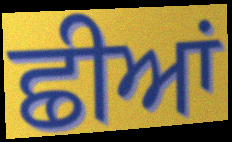
ਛੀਆਂ